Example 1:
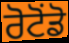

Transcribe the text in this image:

ਰੋਟੋਂਡੋ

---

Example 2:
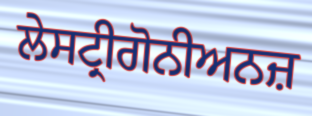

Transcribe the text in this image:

ਲੇਸਟ੍ਰੀਗੋਨੀਅਨਜ਼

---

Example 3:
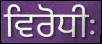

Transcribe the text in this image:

ਵਿਰੋਧੀਃ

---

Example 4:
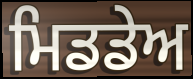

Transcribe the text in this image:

ਮਿਡਡੇਅ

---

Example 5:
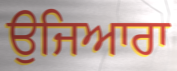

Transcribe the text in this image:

ਉਜਿਆਰਾ